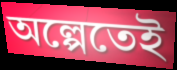
অল্পেতেই